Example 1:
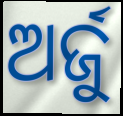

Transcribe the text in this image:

ଅର୍ଜୁ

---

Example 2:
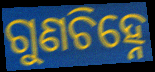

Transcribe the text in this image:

ଗୁଣଚିହ୍ନେ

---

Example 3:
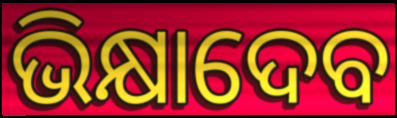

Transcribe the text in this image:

ଭିକ୍ଷାଦେବ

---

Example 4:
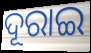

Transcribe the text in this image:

ଦୂରାଇ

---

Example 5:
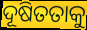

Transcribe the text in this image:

ଦୂଷିତତାକୁ